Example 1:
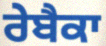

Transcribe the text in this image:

ਰੇਬੈਕਾ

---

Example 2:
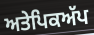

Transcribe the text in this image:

ਅਤੇਪਿਕਅੱਪ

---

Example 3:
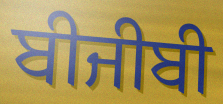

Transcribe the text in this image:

ਬੀਜੀਬੀ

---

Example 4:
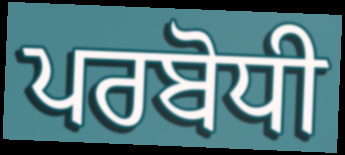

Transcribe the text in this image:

ਪਰਬੋਧੀ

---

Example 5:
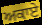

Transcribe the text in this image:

ਅਕਾਏ